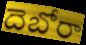
దెబోరా